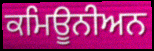
ਕਮਿਊਨੀਅਨ